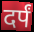
दर्पं